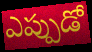
ఎప్పుడో